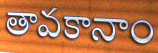
తావకానాం